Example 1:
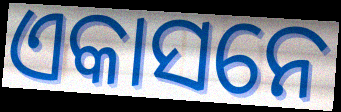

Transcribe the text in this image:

ଏକାସନେ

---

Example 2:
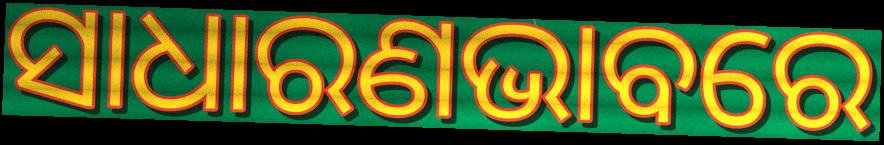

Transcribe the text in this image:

ସାଧାରଣଭାବରେ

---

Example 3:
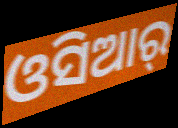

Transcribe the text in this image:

ଓସିଆର୍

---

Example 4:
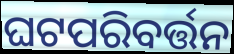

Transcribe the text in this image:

ଘଟପରିବର୍ତ୍ତନ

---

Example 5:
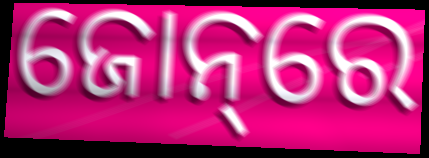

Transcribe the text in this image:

ଜୋନ୍‌ରେ